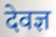
देवज्ञ